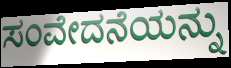
ಸಂವೇದನೆಯನ್ನು